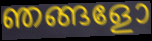
ഞങ്ങളോ